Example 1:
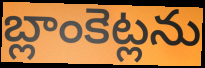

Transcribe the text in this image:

బ్లాంకెట్లను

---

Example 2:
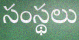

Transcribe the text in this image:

సంస్థలు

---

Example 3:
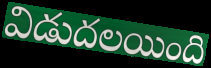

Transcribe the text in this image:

విడుదలయింది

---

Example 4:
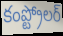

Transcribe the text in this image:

కంప్ట్రోలర్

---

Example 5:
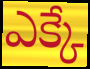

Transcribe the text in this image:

ఎక్కే